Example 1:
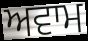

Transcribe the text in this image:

ਅਵਾਮ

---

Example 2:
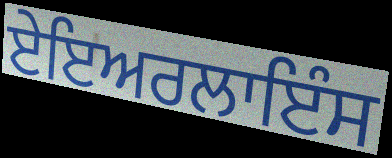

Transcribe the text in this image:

ਏਇਅਰਲਾਇੰਸ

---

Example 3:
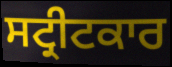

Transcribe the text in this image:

ਸਟ੍ਰੀਟਕਾਰ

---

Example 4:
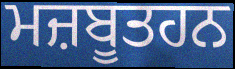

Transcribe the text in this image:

ਮਜ਼ਬੂਤਹਨ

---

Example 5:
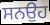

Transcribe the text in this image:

ਸਨਉਹ